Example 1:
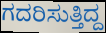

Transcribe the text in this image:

ಗದರಿಸುತ್ತಿದ್ದ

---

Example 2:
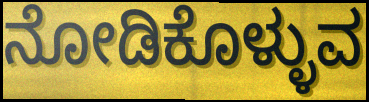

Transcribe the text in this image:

ನೋಡಿಕೊಳ್ಳುವ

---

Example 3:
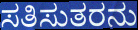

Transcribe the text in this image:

ಸತಿಸುತರನು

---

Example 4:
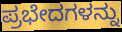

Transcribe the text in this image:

ಪ್ರಭೇದಗಳನ್ನು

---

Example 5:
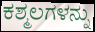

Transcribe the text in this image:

ಕಶ್ಮಲಗಳನ್ನು